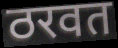
ठरवत